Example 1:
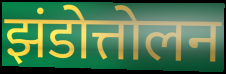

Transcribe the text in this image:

झंडोत्तोलन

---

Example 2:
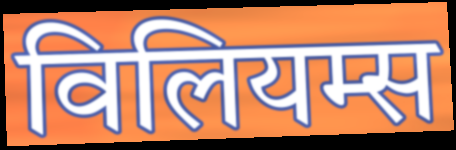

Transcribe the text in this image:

विलियम्स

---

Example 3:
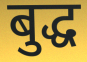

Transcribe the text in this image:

बुद्ध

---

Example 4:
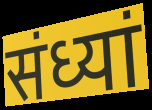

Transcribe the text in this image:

संध्यां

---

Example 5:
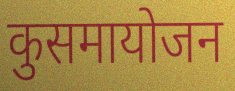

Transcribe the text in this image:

कुसमायोजन